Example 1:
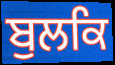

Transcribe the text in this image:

ਬੁਲਕਿ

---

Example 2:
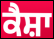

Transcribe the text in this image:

ਕੈਸ਼ਾ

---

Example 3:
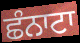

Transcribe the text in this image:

ਛੰਨਾਟਾ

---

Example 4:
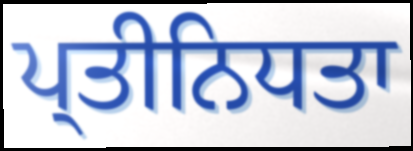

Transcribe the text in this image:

ਪ੍ਤੀਨਿਧਤਾ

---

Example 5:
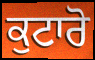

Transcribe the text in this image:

ਕੁਟਾਰੋ